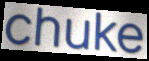
chuke